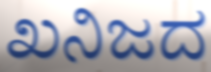
ಖನಿಜದ